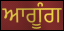
ਆਗੂੰਗ